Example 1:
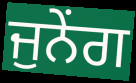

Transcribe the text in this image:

ਜੁਨੇਂਗ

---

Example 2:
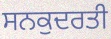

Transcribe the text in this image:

ਸਨਕੁਦਰਤੀ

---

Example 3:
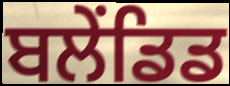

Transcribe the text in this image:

ਬਲੇਂਡਿਡ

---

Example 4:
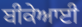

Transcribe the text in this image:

ਬੀਕੇਆਈ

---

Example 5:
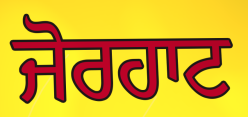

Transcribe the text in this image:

ਜੋਰਹਾਟ